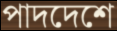
পাদদেশে